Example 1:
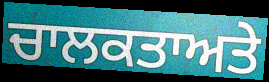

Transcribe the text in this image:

ਚਾਲਕਤਾਅਤੇ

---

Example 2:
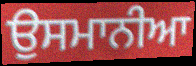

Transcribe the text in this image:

ਉਸਮਾਨੀਆ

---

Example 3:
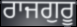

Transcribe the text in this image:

ਰਾਜਗੁਰੂ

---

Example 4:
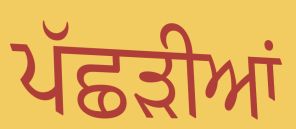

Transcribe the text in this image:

ਪੱਛੜੀਆਂ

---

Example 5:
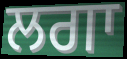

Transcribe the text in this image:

ਲਗਾ